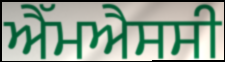
ਐੱਮਐਸਸੀ